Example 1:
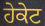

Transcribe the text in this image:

ਹੇਕੇਟ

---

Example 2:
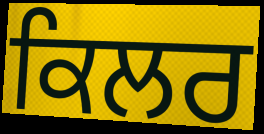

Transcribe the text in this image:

ਕਿਲਰ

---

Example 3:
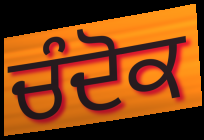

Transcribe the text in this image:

ਚੰਦੋਕ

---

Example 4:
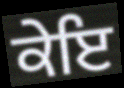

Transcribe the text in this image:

ਕੇਇ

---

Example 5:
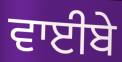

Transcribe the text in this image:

ਵਾਈਬੇ